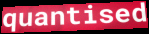
quantised